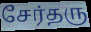
சேர்தரு